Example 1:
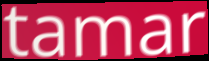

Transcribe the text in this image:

tamar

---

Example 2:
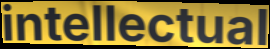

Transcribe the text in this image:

intellectual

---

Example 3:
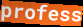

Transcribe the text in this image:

profess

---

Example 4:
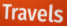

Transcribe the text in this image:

Travels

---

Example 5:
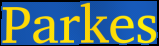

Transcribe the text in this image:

Parkes